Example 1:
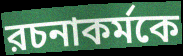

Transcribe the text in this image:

রচনাকর্মকে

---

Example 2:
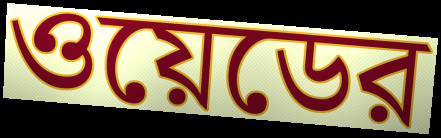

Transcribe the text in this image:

ওয়েডের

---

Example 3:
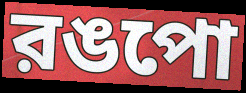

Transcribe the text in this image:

রঙপো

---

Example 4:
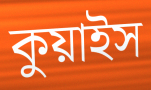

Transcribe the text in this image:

কুয়াইস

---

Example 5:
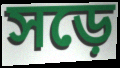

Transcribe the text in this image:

সড়ে